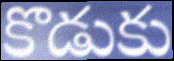
కొడుకు